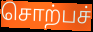
சொற்பச்